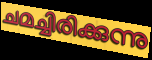
ചമച്ചിരിക്കുന്നു